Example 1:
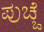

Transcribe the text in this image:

ಪುಚ್ಚೆ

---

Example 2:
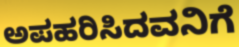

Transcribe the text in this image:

ಅಪಹರಿಸಿದವನಿಗೆ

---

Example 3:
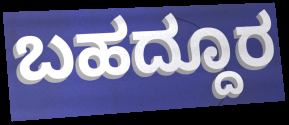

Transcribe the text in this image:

ಬಹದ್ದೂರ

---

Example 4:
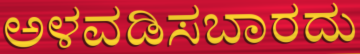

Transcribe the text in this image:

ಅಳವಡಿಸಬಾರದು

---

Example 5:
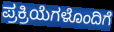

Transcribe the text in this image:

ಪ್ರಕ್ರಿಯೆಗಳೊಂದಿಗೆ